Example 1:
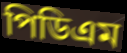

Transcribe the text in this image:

পিডিএম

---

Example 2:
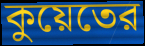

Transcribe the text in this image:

কুয়েতের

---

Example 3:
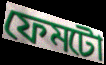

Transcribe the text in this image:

ফেমটো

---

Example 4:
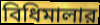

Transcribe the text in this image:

বিধিমালার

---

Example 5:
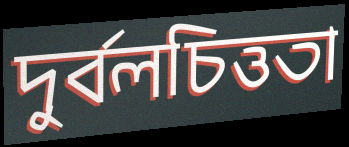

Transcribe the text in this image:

দুর্বলচিত্ততা